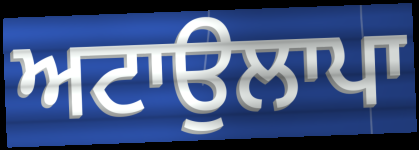
ਅਟਾਉਲਾਪਾ